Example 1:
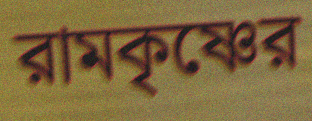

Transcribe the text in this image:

রামকৃষ্ণের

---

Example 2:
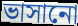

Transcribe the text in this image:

ভাসানো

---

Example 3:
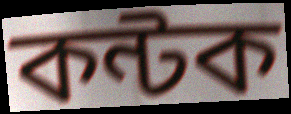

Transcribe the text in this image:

কন্টক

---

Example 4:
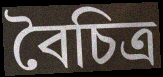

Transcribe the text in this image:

বৈচিত্র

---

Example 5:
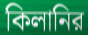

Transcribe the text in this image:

কিলানির